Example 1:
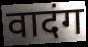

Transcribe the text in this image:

वादंग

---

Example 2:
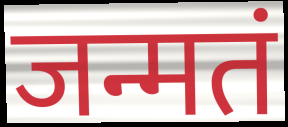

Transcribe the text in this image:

जन्मतं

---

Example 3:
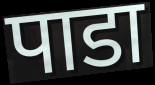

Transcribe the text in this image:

पाडा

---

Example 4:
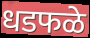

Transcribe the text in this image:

धडफळे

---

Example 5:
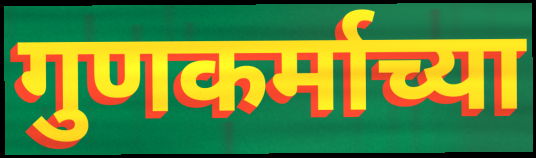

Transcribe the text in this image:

गुणकर्माच्या